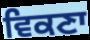
ਵਿਕਣਾ